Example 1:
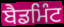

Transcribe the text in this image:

ਬੈਡਮਿੰਟ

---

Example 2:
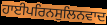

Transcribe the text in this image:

ਹਾਈਪਰਿਨਸੁਲਿਨਵਾਦ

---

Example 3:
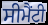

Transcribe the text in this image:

ਸੀਮੈਂਟੀ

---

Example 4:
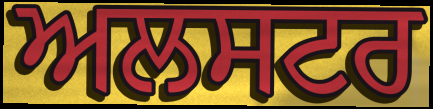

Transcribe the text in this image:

ਅਲਸਟਰ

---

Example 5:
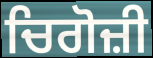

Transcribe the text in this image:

ਚਿਗੋਜ਼ੀ